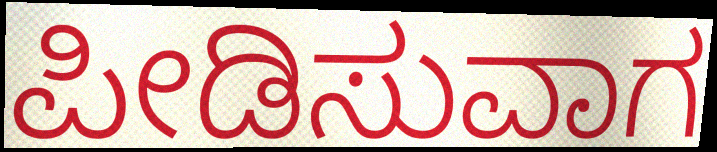
ಪೀಡಿಸುವಾಗ